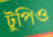
টুপিও